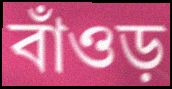
বাঁওড়